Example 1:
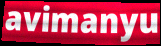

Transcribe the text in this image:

avimanyu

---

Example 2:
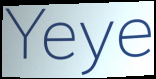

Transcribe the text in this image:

Yeye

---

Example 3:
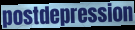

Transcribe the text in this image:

postdepression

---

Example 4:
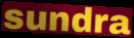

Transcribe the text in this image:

sundra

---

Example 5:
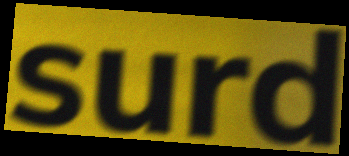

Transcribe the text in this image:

surd